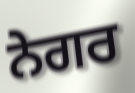
ਨੇਗਰ